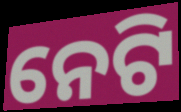
ନେଟି